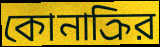
কোনাক্রির